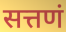
सत्तणं